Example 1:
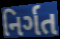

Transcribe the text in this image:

નિર્ગત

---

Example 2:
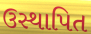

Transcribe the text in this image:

ઉસ્થાપિત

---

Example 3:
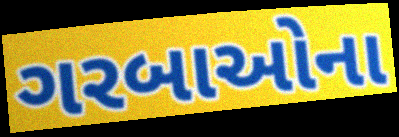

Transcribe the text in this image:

ગરબાઓના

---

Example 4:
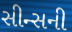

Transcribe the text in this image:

સીન્સની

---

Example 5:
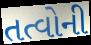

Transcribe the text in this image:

તત્વોની